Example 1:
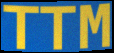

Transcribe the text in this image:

TTM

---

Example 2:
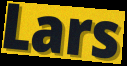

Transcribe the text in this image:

Lars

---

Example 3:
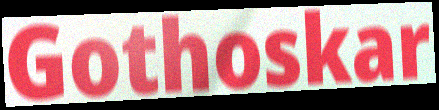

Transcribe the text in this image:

Gothoskar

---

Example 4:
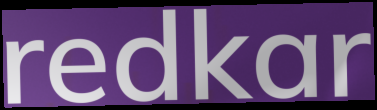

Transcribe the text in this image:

redkar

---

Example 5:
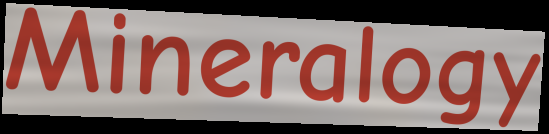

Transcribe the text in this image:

Mineralogy